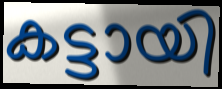
കട്ടായി